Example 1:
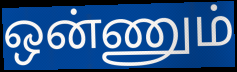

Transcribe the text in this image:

ஒன்ணும்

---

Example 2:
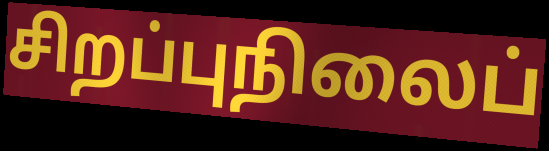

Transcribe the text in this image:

சிறப்புநிலைப்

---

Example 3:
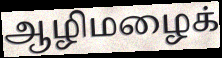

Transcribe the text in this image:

ஆழிமழைக்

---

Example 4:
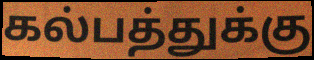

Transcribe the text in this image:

கல்பத்துக்கு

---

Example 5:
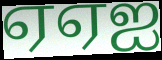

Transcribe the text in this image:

ஏஏஐ